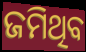
ଜମିଥିବ